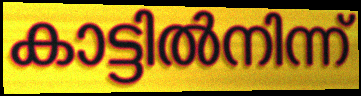
കാട്ടിൽനിന്ന്